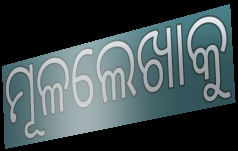
ମୂଳଲେଖାକୁ